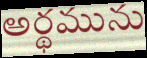
అర్థమును